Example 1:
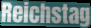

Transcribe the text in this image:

Reichstag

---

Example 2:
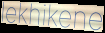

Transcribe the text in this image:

lekhikene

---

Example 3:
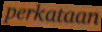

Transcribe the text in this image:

perkataan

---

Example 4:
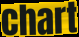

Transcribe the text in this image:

chart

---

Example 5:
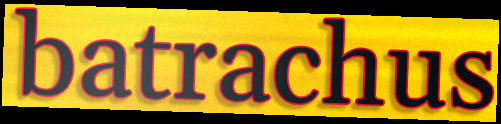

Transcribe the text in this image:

batrachus